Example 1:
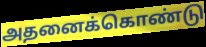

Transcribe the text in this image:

அதனைக்கொண்டு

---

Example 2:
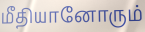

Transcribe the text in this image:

மீதியானோரும்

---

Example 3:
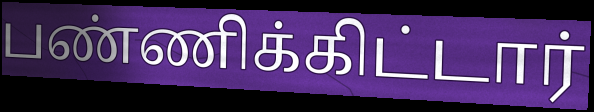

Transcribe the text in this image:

பண்ணிக்கிட்டார்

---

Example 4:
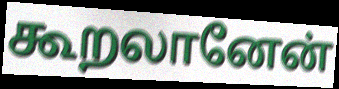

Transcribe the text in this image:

கூறலானேன்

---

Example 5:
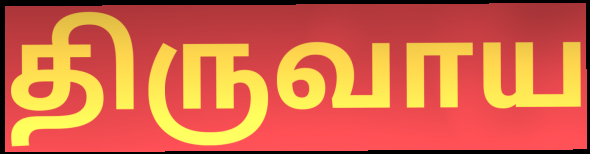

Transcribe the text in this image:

திருவாய